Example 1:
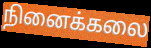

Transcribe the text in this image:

நினைக்கலை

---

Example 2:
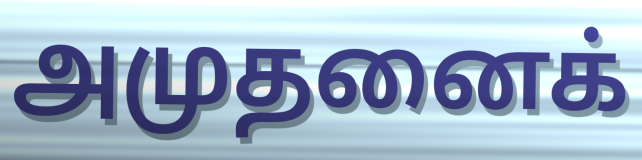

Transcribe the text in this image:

அமுதனைக்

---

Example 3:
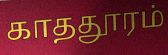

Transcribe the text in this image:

காததூரம்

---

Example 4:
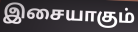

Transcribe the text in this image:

இசையாகும்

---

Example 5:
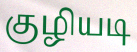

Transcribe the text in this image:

குழியடி